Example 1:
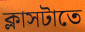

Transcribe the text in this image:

ক্লাসটাতে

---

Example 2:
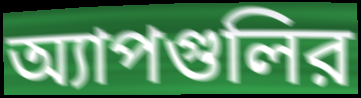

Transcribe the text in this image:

অ্যাপগুলির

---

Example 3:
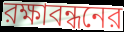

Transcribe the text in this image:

রক্ষাবন্ধনের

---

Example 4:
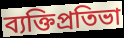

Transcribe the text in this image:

ব্যক্তিপ্রতিভা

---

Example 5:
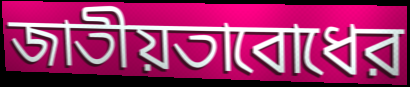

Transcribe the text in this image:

জাতীয়তাবোধের